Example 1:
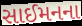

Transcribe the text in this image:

સાઈમનના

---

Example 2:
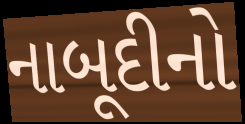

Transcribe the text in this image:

નાબૂદીનો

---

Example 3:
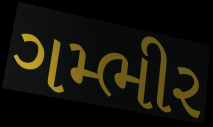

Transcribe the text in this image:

ગમ્ભીર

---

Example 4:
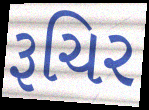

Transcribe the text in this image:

રૂચિર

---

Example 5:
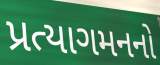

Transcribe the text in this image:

પ્રત્યાગમનનો